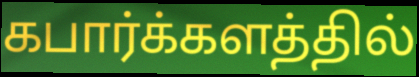
கபார்க்களத்தில்